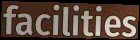
facilities